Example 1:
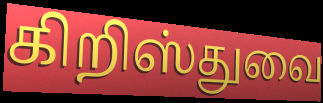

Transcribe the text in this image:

கிறிஸ்துவை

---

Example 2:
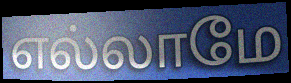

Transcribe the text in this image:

எல்லாமே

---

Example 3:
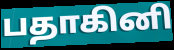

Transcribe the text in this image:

பதாகினி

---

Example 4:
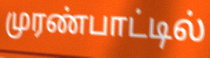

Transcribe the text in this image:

முரண்பாட்டில்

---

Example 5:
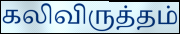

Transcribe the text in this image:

கலிவிருத்தம்